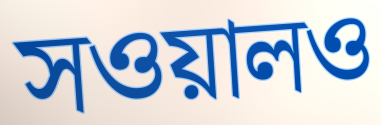
সওয়ালও